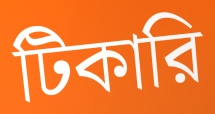
টিকারি